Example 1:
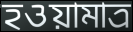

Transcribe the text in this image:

হওয়ামাত্র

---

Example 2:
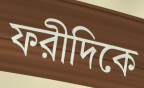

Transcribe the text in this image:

ফরীদিকে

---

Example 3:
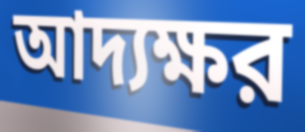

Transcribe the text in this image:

আদ্যক্ষর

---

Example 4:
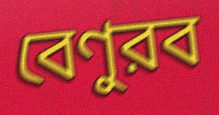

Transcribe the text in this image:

বেণুরব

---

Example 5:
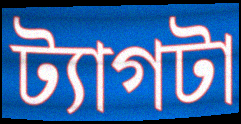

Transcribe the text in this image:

ট্যাগটা